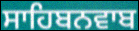
ਸਾਹਿਬਨਵਾਬ